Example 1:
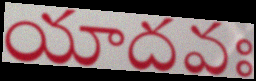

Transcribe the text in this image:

యాదవః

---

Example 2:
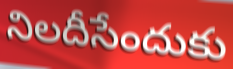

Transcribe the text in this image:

నిలదీసేందుకు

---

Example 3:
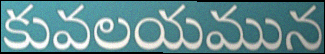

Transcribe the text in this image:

కువలయమున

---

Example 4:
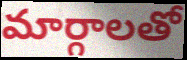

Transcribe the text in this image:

మార్గాలతో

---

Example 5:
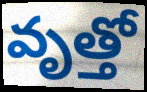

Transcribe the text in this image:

వృత్తో